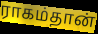
ராகம்தான்